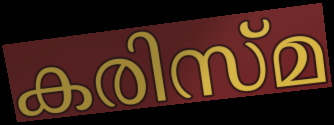
കരിസ്മ